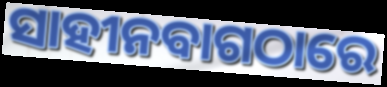
ସାହୀନବାଗଠାରେ